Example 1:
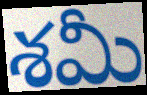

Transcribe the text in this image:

శమీ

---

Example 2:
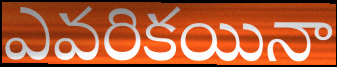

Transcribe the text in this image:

ఎవరికయినా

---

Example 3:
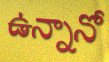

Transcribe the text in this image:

ఉన్నానో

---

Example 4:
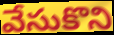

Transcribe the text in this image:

వేసుకొని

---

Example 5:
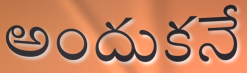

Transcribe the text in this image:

అందుకనే